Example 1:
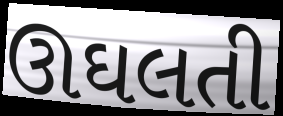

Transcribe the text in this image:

ઊઘલતી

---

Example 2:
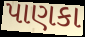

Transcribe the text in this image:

પાણકા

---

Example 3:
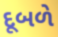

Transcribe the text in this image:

દૂબળે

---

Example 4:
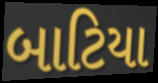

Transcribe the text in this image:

બાટિયા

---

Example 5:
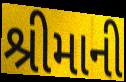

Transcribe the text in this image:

શ્રીમાની